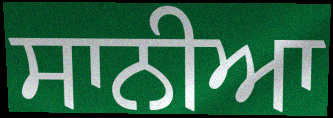
ਸਾਨੀਆ